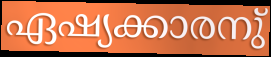
ഏഷ്യക്കാരനു്